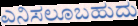
ಎನಿಸಲೂಬಹುದು